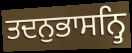
ਤਦਨੁਭਾਸਨ੍ਤਿ